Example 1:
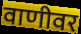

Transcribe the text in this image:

वाणीवर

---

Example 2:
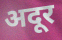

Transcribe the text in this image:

अदूर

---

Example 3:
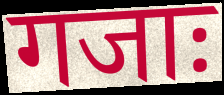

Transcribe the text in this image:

गजाः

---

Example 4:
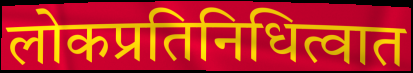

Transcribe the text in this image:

लोकप्रतिनिधित्वात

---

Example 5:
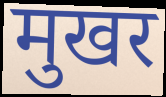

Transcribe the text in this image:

मुखर